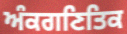
ਅੰਕਗਣਿਤਿਕ